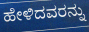
ಹೇಳಿದವರನ್ನು